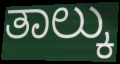
ತಾಲ್ಕು